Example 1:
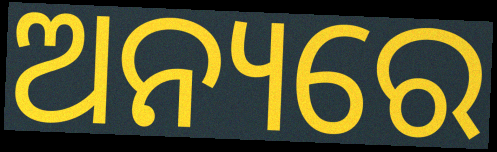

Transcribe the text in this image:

ଅନ୍ୟରେ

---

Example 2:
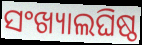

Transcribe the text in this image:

ସଂଖ୍ୟାଲଘିଷ୍ଠ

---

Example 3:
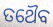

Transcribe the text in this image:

ତଥୈବ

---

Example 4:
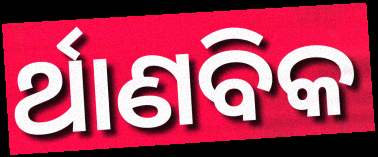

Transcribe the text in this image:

ର୍ଥାଣବିକ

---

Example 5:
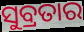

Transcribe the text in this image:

ସୁବ୍ରତାର